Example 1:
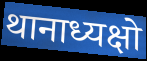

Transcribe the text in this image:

थानाध्यक्षो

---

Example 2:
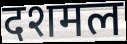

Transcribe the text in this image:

दशमल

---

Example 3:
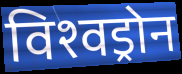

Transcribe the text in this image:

विश्वड्रोन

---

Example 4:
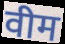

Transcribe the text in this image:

वीम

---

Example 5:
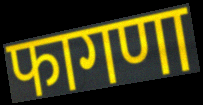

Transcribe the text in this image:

फागणा